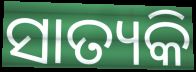
ସାତ୍ୟକି